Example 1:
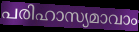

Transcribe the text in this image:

പരിഹാസ്യമാവാം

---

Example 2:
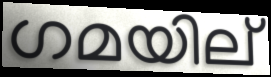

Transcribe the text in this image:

ഗമയില്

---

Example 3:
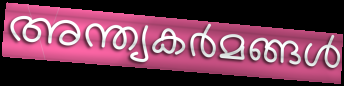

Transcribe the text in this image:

അന്ത്യകർമങ്ങൾ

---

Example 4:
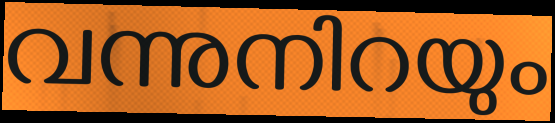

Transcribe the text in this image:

വന്നുനിറയും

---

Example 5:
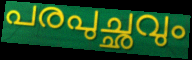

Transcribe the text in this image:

പരപുച്ഛവും